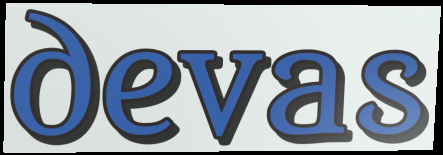
devas